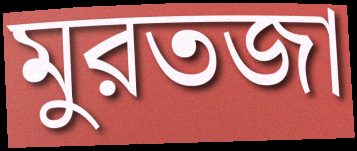
মুরতজা